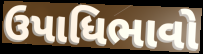
ઉપાધિભાવો